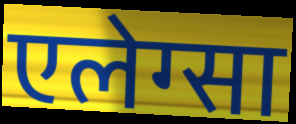
एलेग्सा